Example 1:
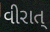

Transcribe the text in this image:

વીરાત્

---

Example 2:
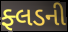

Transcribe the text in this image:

ફ્લડની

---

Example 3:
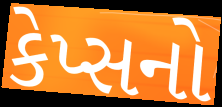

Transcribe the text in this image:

કેપ્સનો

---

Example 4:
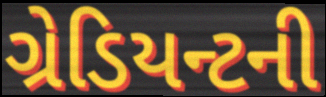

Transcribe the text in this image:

ગ્રેડિયન્ટની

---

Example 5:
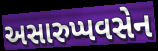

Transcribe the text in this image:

અસારુપ્પવસેન